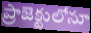
ప్రాజెక్టులోనూ